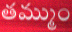
తమ్ముం